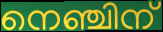
നെഞ്ചിന്